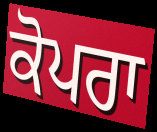
ਕੋਪਰਾ